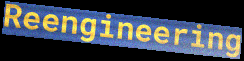
Reengineering